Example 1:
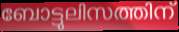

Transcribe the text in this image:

ബോട്ടുലിസത്തിന്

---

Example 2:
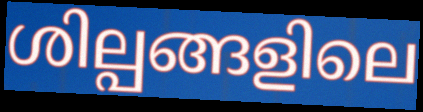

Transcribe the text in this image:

ശില്പങ്ങളിലെ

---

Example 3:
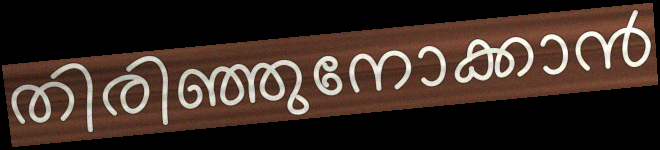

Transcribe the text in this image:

തിരിഞ്ഞുനോക്കാൻ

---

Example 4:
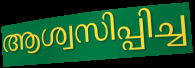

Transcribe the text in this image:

ആശ്വസിപ്പിച്ച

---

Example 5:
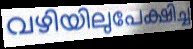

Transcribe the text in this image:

വഴിയിലുപേക്ഷിച്ച